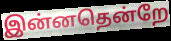
இன்னதென்றே